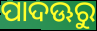
ପାଦଊରୁ